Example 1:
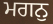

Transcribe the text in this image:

ਮਗਨੁ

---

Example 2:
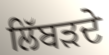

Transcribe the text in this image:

ਲਿੱਬੜਦੇ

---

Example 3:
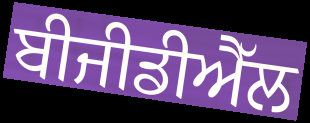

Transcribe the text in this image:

ਬੀਜੀਡੀਐੱਲ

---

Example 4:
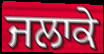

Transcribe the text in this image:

ਜਲਾਕੇ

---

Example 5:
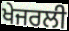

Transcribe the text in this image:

ਖੇਜਰਲੀ